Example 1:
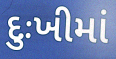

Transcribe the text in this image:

દુઃખીમાં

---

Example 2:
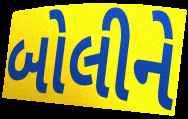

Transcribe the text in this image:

બોલીને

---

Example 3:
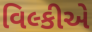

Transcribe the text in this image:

વિલ્કીએ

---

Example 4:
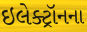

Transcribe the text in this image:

ઇલેક્ટ્રૉનના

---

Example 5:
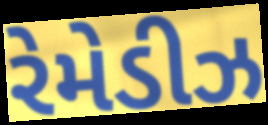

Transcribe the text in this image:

રેમેડીઝ